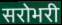
सरोभरी